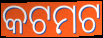
କଟମଟ